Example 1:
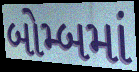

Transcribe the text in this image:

બોમ્બમાં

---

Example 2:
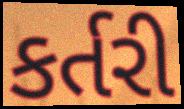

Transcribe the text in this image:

કર્તરી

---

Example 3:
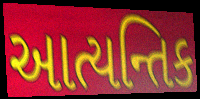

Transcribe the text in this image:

આત્યન્તિક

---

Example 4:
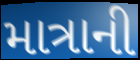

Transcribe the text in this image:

માત્રાની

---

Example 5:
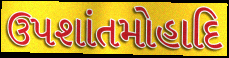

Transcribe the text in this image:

ઉપશાંતમોહાદિ